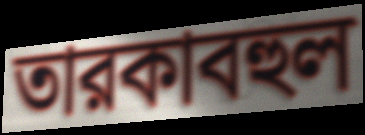
তারকাবহুল